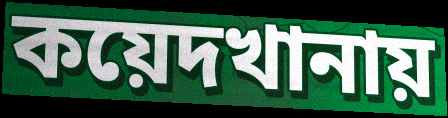
কয়েদখানায়